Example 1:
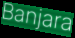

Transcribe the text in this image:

Banjara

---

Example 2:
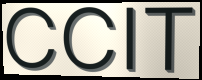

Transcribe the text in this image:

CCIT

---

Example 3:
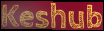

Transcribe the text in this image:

Keshub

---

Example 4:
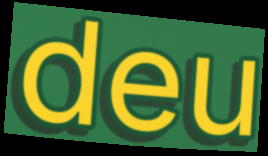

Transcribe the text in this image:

deu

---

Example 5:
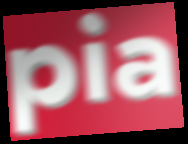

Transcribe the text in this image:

pia